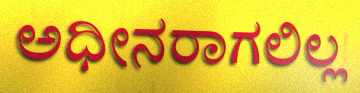
ಅಧೀನರಾಗಲಿಲ್ಲ